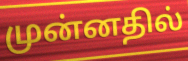
முன்னதில்